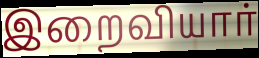
இறைவியார்